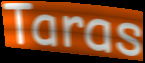
Taras